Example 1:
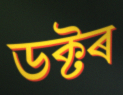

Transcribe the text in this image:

ডক্টৰ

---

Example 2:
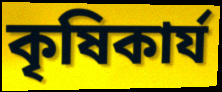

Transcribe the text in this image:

কৃষিকাৰ্য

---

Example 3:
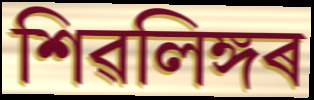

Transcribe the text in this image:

শিৱলিঙ্গৰ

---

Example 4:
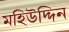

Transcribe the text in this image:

মহিউদ্দিন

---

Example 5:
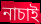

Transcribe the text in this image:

নাচাই